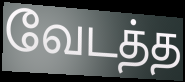
வேடத்த